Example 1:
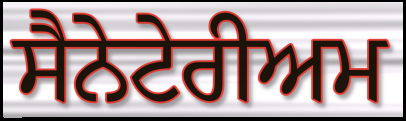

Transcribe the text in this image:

ਸੈਨੇਟੇਰੀਅਮ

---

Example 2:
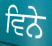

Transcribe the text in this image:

ਵਿਨੇ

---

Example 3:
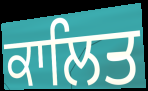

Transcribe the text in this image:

ਕਾਲਿਤ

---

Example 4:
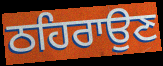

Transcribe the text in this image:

ਠਹਿਰਾਉਣ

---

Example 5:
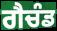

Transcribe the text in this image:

ਗੈਚੰਡ